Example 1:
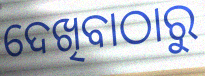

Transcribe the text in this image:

ଦେଖିବାଠାରୁ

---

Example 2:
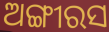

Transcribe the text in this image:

ଅଙ୍ଗୀରସ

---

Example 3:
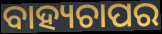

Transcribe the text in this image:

ବାହ୍ୟଚାପର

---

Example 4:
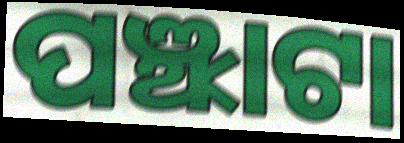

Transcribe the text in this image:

ପଞ୍ଝାଟା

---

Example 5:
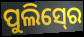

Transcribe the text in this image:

ପୁଲିସ୍‍ରେ